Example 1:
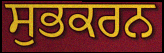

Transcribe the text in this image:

ਸੁਭਕਰਨ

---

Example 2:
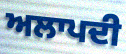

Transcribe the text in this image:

ਅਲਾਪਦੀ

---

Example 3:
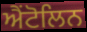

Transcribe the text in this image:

ਐਂਟੋਲਿਨ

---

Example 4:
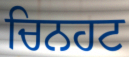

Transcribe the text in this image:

ਚਿਨਹਟ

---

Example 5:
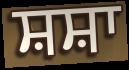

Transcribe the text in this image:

ਸ਼ਸ਼ਾ